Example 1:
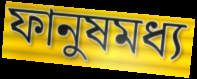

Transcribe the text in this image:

ফানুষমধ্য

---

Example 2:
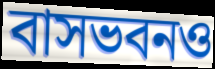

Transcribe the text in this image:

বাসভবনও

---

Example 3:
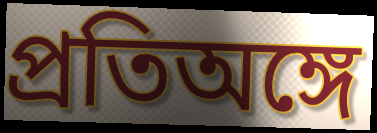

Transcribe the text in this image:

প্রতিঅঙ্গে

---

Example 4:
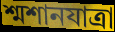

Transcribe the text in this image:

শ্মশানযাত্রা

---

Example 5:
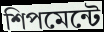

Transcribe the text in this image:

শিপমেন্টে